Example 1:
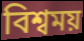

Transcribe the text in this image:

বিশ্বময়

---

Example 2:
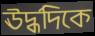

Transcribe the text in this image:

ঊর্দ্ধদিকে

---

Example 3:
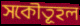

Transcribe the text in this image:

সকৌতূহল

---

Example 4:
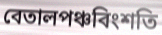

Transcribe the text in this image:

বেতালপঞ্চবিংশতি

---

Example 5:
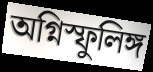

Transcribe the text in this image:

অগ্নিস্ফুলিঙ্গ